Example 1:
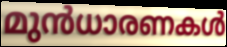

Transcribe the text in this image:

മുൻധാരണകൾ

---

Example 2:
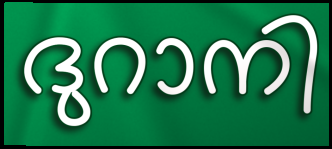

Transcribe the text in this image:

ദുറാനി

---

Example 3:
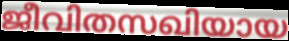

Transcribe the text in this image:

ജീവിതസഖിയായ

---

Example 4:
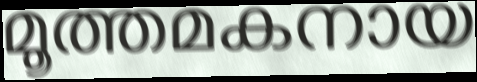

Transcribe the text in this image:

മൂത്തമകനായ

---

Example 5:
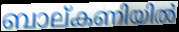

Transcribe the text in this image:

ബാല്കണിയിൽ